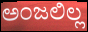
ಅಂಜಲಿಲ್ಲ